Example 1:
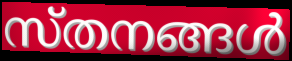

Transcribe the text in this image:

സ്തനങ്ങൾ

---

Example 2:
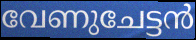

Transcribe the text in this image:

വേണുചേട്ടൻ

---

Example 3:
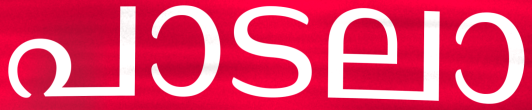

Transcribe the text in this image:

പാടലാ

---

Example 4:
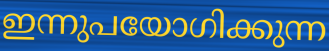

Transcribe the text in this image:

ഇന്നുപയോഗിക്കുന്ന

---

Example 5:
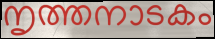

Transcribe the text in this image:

നൃത്തനാടകം